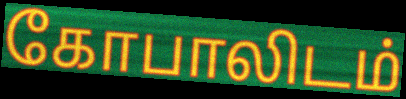
கோபாலிடம்